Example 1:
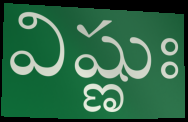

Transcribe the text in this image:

విష్ణుః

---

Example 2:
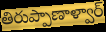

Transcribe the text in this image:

తిరుప్పాణాళ్వార్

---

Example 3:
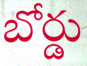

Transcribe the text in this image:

బోర్డు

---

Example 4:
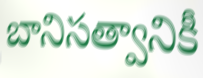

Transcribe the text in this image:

బానిసత్వానికీ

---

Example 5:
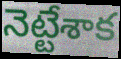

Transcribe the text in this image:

నెట్టేశాక